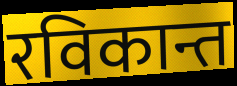
रविकान्त